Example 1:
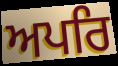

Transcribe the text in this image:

ਅਪਰਿ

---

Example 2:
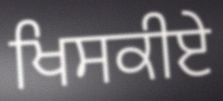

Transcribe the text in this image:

ਖਿਸਕੀਏ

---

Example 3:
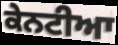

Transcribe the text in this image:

ਕੇਨਟੀਆ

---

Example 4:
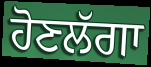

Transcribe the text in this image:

ਹੋਣਲੱਗਾ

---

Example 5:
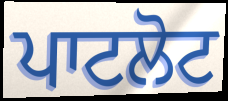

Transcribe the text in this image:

ਪਾਟਲੋਟ